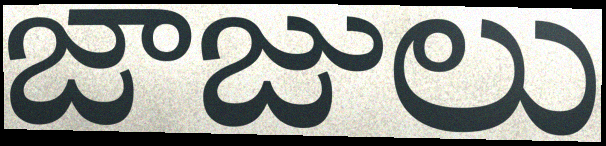
జాజులు